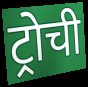
ट्रोची